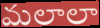
మలాలా